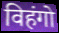
विहंगो